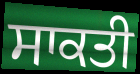
ਸਾਕਤੀ